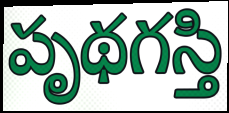
పృథగస్తి